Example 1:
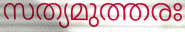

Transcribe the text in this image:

സത്യമുത്തരഃ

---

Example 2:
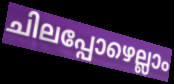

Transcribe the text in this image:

ചിലപ്പോഴെല്ലാം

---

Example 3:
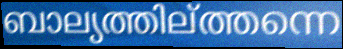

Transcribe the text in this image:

ബാല്യത്തില്ത്തന്നെ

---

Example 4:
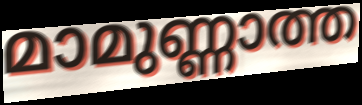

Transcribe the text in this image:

മാമുണ്ണാത്ത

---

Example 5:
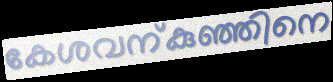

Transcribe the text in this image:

കേശവന്കുഞ്ഞിനെ